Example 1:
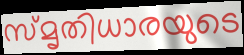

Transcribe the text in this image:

സ്മൃതിധാരയുടെ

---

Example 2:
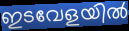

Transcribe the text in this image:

ഇടവേളയിൽ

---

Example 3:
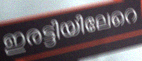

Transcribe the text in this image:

ഇരട്ടിയിലേറെ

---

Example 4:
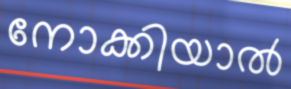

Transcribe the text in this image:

നോക്കിയാൽ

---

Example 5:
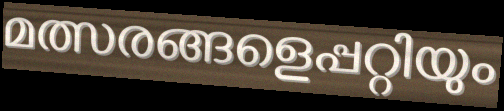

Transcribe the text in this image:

മത്സരങ്ങളെപ്പറ്റിയും